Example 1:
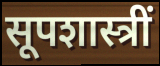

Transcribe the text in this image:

सूपशास्त्रीं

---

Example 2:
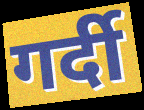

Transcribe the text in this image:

गर्दी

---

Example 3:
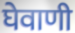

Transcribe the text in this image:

घेवाणी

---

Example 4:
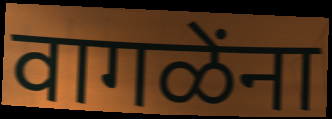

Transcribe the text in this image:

वागळेंना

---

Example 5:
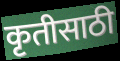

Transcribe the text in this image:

कृतीसाठी